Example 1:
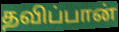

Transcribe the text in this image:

தவிப்பான்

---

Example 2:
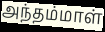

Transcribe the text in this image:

அந்தம்மாள்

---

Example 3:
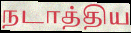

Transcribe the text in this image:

நடாத்திய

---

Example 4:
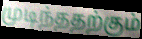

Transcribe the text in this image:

முடிந்ததற்கும்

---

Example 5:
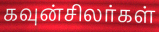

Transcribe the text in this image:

கவுன்சிலர்கள்